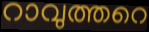
റാവുത്തറെ